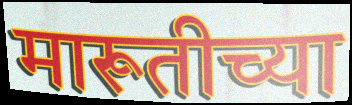
मारूतीच्या